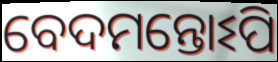
ବେଦମନ୍ତୋଽପି